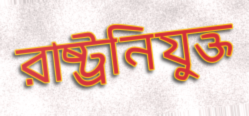
রাষ্ট্রনিযুক্ত